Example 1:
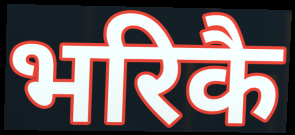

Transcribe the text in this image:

भरिकै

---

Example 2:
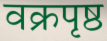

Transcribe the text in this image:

वक्रपृष्ठ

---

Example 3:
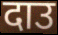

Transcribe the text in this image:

दाउ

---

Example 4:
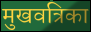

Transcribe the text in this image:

मुखवत्रिका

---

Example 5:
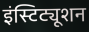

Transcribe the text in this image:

इंस्टिट्यूशन